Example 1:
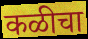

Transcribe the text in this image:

कळीचा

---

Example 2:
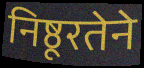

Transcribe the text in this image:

निष्ठूरतेने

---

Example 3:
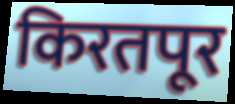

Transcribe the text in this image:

किरतपूर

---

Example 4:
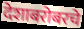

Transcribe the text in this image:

देशाबरोबरचे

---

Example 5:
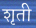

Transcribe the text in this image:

शृती